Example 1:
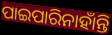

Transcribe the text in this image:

ପାଇପାରିନାହାଁନ୍ତି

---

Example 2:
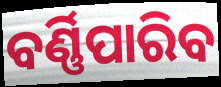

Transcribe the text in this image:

ବର୍ଣ୍ଣିପାରିବ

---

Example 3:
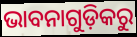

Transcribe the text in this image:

ଭାବନାଗୁଡ଼ିକରୁ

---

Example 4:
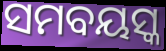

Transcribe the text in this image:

ସମବୟସ୍କ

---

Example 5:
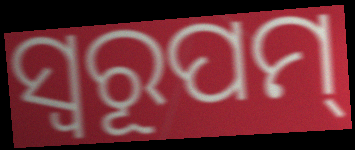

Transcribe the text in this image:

ସ୍ଵରୂପମ୍